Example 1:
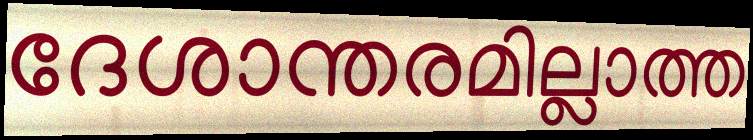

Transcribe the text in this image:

ദേശാന്തരമില്ലാത്ത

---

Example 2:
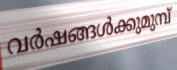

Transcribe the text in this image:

വർഷങ്ങൾക്കുമുമ്പ്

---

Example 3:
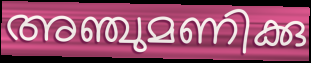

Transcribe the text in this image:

അഞ്ചുമണിക്കു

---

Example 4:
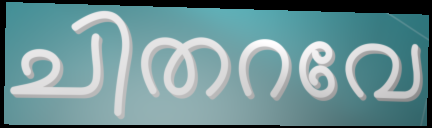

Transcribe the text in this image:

ചിതറവേ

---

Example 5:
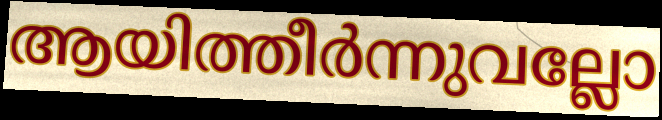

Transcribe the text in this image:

ആയിത്തീർന്നുവല്ലോ